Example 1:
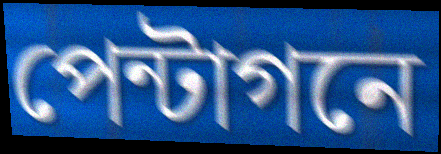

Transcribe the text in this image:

পেন্টাগনে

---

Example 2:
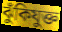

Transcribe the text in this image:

ঝুঁকিযুক্ত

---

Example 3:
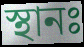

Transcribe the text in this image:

স্থানঃ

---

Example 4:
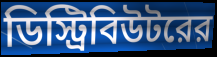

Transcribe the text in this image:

ডিস্ট্রিবিউটরের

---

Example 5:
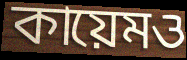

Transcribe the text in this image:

কায়েমও